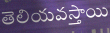
తెలియవస్తాయి